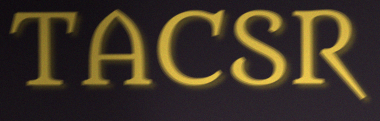
TACSR